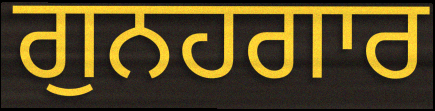
ਗੁਨਹਗਾਰ